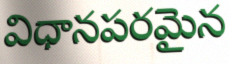
విధానపరమైన